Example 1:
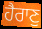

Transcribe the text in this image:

ਹੈਰਾਣੁ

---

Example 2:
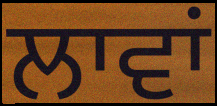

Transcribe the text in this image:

ਲਾਵਾਂ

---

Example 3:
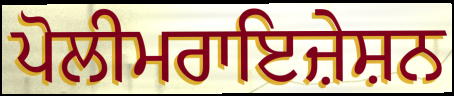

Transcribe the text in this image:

ਪੋਲੀਮਰਾਇਜ਼ੇਸ਼ਨ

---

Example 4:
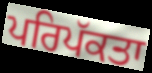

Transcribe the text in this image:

ਪਰਿਪੱਕਤਾ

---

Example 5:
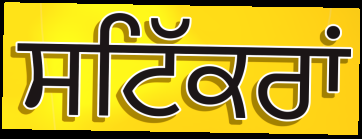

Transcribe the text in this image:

ਸਟਿੱਕਰਾਂ